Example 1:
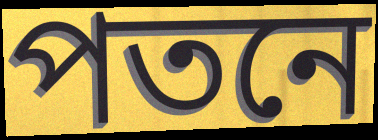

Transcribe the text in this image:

পতনে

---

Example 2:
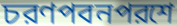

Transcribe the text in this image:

চরণপবনপরশে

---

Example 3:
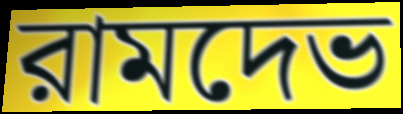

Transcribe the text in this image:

রামদেভ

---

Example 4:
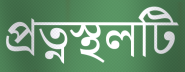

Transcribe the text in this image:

প্রত্নস্থলটি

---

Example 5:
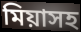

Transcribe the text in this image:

মিয়াসহ